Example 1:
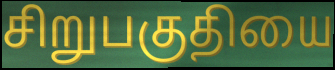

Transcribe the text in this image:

சிறுபகுதியை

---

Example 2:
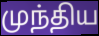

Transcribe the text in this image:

முந்திய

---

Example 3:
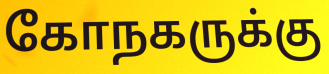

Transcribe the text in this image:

கோநகருக்கு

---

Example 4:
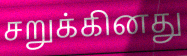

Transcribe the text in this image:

சறுக்கினது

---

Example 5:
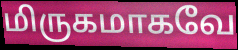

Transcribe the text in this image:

மிருகமாகவே